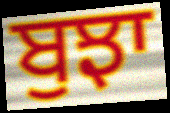
ਬੁਝਾ